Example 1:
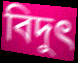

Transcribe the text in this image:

বিদুৎ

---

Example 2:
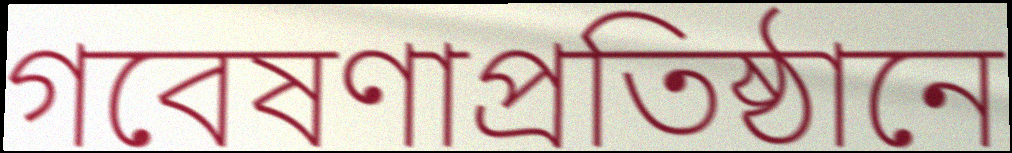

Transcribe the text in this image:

গবেষণাপ্রতিষ্ঠানে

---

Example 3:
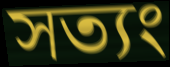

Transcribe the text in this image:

সত্যং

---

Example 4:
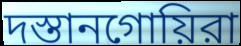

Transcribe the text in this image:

দস্তানগোয়িরা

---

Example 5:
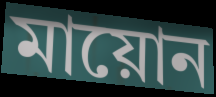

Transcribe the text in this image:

মায়োন